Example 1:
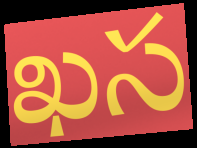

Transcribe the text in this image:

ఖస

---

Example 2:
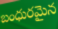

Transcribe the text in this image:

బంధురమైన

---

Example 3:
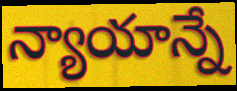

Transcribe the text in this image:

న్యాయాన్నే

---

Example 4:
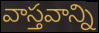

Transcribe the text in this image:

వాస్తవాన్ని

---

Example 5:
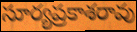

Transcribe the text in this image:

సూర్యప్రకాశరావు